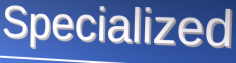
Specialized